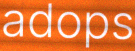
adops